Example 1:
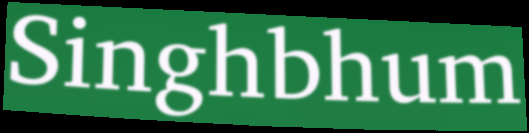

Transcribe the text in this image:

Singhbhum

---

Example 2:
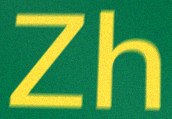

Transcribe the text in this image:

Zh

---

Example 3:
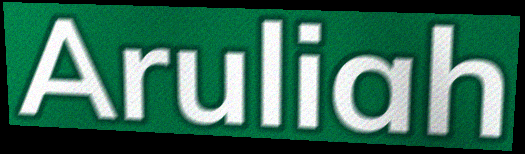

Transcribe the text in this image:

Aruliah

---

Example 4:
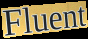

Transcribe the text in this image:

Fluent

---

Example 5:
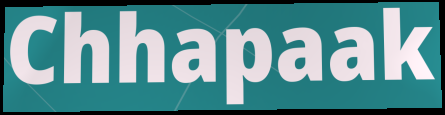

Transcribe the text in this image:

Chhapaak